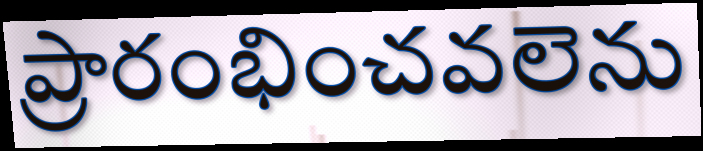
ప్రారంభించవలెను